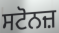
ਸਟੋਨਜ਼